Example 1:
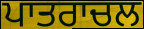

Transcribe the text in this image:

ਪਾਤਰਾਚਲ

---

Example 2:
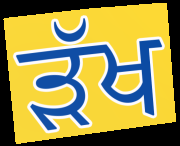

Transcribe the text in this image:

ੜੱਖ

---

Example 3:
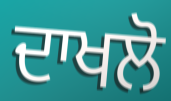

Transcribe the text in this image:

ਦਾਖਲੋ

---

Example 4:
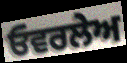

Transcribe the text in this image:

ਓਵਰਲੇਅ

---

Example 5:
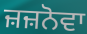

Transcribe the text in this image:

ਜ਼ਜ਼ਨੋਵਾ